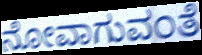
ನೋವಾಗುವಂತೆ